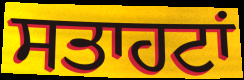
ਸਤਾਹਟਾਂ